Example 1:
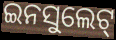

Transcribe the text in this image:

ଇନସୁଲେଟ୍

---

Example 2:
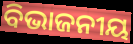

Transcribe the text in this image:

ବିଭାଜନୀୟ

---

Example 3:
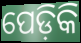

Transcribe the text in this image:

ପେଡ଼ିକି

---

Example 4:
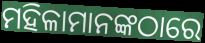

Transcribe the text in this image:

ମହିଳାମାନଙ୍କଠାରେ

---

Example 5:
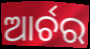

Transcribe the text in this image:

ଆର୍ଚର